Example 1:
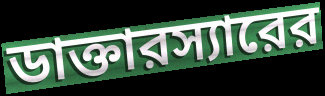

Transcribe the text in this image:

ডাক্তারস্যারের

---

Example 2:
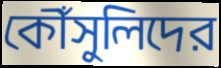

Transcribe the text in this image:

কৌঁসুলিদের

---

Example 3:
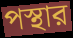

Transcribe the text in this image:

পস্থার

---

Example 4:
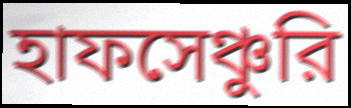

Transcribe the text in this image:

হাফসেঞ্চুরি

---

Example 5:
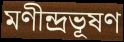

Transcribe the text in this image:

মণীন্দ্রভূষণ